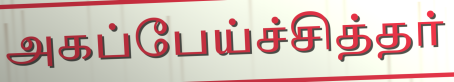
அகப்பேய்ச்சித்தர்